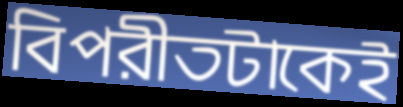
বিপরীতটাকেই